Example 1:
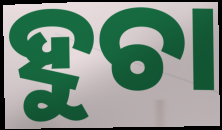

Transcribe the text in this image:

ହୁଚା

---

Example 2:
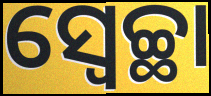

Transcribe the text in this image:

ସ୍ବେଚ୍ଛା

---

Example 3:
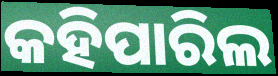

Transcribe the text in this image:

କହିପାରିଲ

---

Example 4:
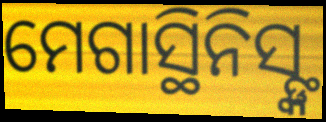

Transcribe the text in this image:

ମେଗାସ୍ଥିନିସ୍ଙ୍କ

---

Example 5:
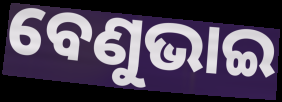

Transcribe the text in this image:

ବେଣୁଭାଇ